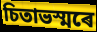
চিতাভস্মৰে